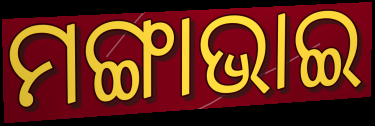
ମଙ୍ଗାଭାଇ